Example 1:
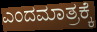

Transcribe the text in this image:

ಎಂದಮಾತ್ರಕ್ಕೆ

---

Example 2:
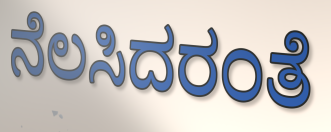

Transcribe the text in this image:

ನೆಲಸಿದರಂತೆ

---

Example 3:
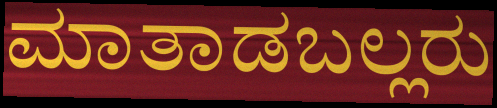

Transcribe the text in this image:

ಮಾತಾಡಬಲ್ಲರು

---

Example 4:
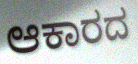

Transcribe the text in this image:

ಆಕಾರದ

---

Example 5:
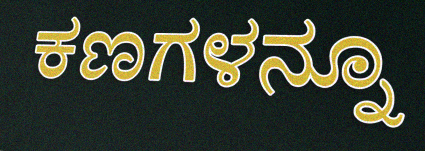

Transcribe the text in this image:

ಕಣಗಳನ್ನೂ